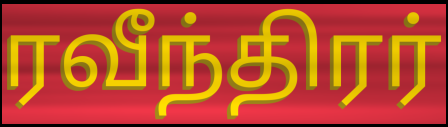
ரவீந்திரர்